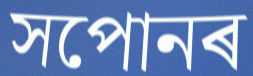
সপোনৰ